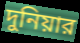
দুনিয়ার